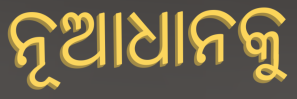
ନୂଆଧାନକୁ